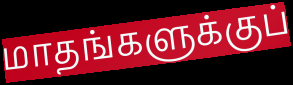
மாதங்களுக்குப்